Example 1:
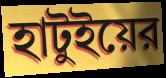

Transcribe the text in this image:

হাটুইয়ের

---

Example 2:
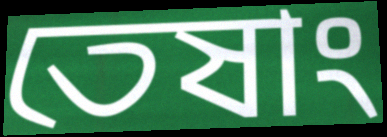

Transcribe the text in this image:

তেষাং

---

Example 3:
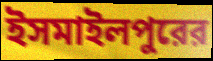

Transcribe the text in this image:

ইসমাইলপুরের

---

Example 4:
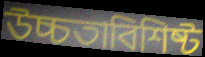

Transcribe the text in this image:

উচ্চতাবিশিষ্ট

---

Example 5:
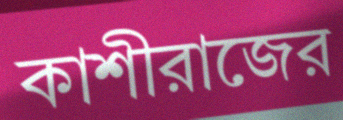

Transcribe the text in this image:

কাশীরাজের